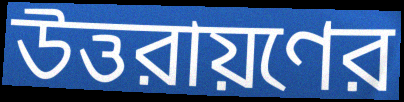
উত্তরায়ণের